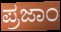
ಪ್ರಜಾಂ